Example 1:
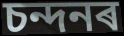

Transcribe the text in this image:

চন্দনৰ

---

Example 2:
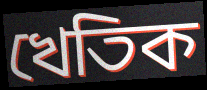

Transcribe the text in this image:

খেতিক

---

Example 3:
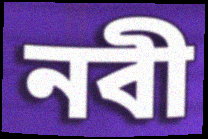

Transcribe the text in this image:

নবী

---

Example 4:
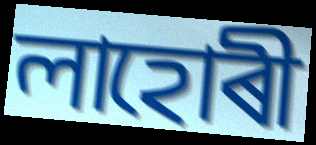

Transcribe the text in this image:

লাহোৰী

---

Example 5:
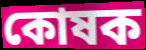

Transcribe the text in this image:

কোষক